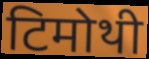
टिमोथी